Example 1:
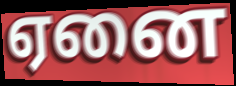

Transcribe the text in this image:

ஏனை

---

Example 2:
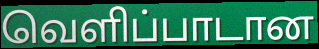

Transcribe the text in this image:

வெளிப்பாடான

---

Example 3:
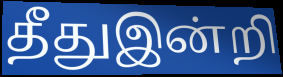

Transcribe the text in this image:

தீதுஇன்றி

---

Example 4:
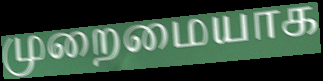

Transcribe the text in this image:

முறைமையாக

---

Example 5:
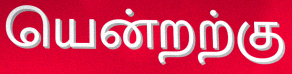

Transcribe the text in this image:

யென்றற்கு